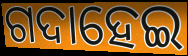
ଗଦାହେଇ